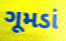
ગૂમડાં